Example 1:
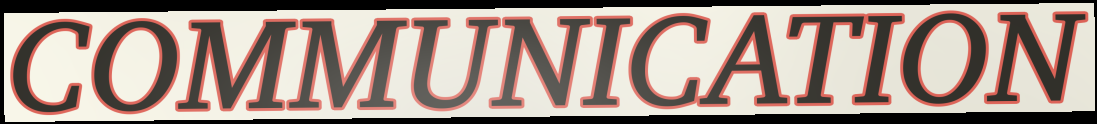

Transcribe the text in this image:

COMMUNICATION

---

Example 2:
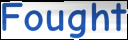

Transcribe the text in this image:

Fought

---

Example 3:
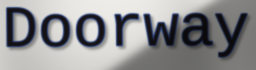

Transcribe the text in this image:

Doorway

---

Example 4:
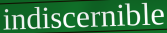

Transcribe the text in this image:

indiscernible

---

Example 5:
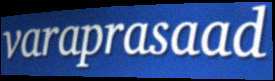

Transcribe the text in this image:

varaprasaad